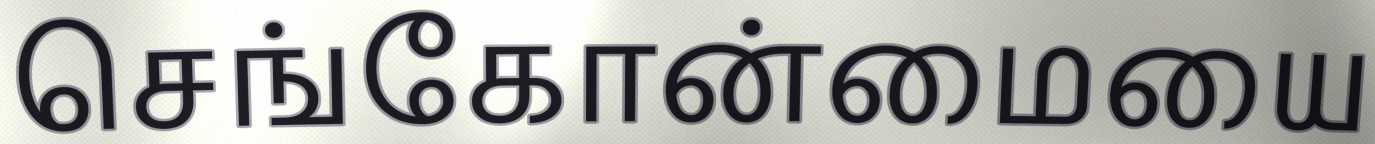
செங்கோன்மையை